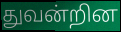
துவன்றின